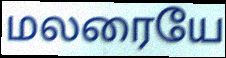
மலரையே